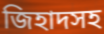
জিহাদসহ